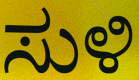
ಸುಳಿ